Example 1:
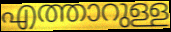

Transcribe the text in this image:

എത്താറുള്ള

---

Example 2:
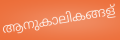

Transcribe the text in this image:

ആനുകാലികങ്ങള്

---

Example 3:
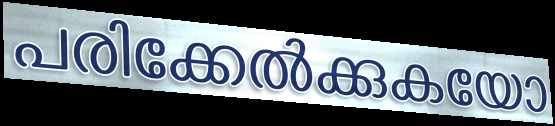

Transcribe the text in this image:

പരിക്കേൽക്കുകയോ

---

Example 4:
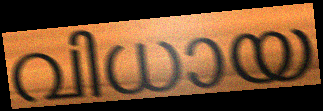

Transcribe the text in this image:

വിധായ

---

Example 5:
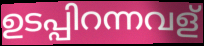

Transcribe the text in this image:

ഉടപ്പിറന്നവള്